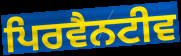
ਪਿਰਵੈਨਟੀਵ